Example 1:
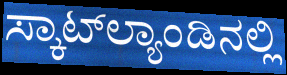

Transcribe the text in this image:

ಸ್ಕಾಟ್‌ಲ್ಯಾಂಡಿನಲ್ಲಿ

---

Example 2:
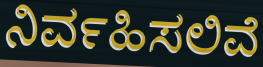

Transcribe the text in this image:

ನಿರ್ವಹಿಸಲಿವೆ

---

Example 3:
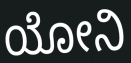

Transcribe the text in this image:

ಯೋನಿ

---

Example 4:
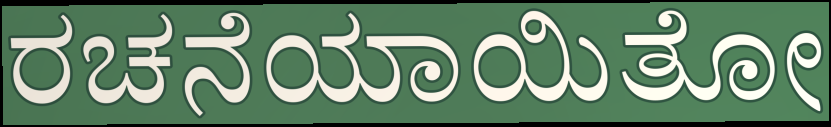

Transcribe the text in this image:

ರಚನೆಯಾಯಿತೋ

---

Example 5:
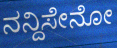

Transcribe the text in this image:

ನನ್ದಿಸೇನೋ